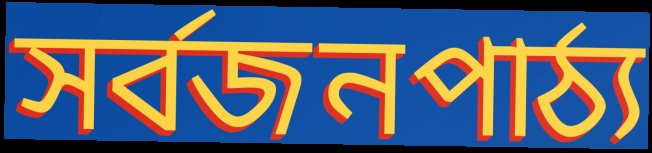
সর্বজনপাঠ্য